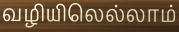
வழியிலெல்லாம்